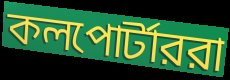
কলপোর্টাররা